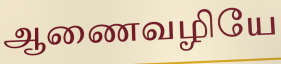
ஆணைவழியே